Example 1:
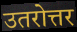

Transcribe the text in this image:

उतरोत्तर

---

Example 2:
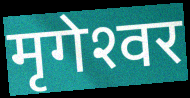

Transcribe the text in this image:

मृगेश्वर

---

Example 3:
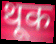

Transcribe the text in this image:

थूक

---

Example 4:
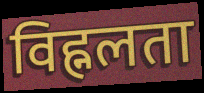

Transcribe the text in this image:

विह्नलता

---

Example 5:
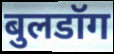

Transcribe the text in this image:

बुलडॉग